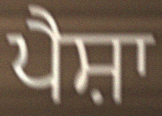
ਪੈਸ਼ਾ